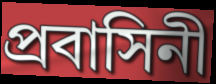
প্রবাসিনী